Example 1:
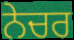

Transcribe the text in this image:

ਨੇਚਰ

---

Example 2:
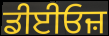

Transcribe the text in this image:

ਡੀਈਓਜ਼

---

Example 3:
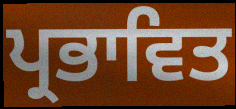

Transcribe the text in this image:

ਪ੍ਰਭਾਵਿਤ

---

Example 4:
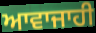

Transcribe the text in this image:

ਆਵਾਜਾਹੀ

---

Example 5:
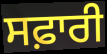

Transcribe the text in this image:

ਸਫ਼ਾਰੀ